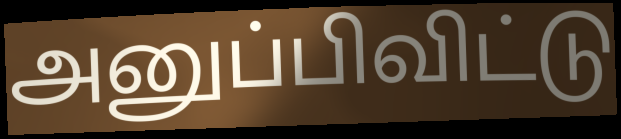
அனுப்பிவிட்டு